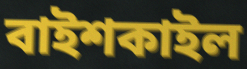
বাইশকাইল